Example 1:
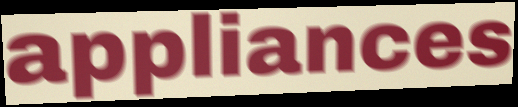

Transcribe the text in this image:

appliances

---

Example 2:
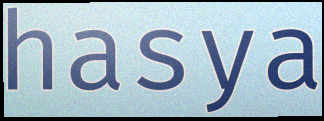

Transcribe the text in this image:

hasya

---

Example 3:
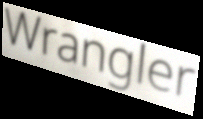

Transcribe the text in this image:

Wrangler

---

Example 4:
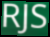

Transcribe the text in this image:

RJS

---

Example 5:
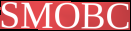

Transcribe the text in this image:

SMOBC